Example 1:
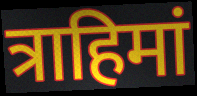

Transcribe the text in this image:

त्राहिमां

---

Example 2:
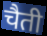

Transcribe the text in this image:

चैती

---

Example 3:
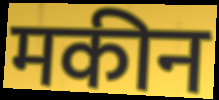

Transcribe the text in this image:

मकीन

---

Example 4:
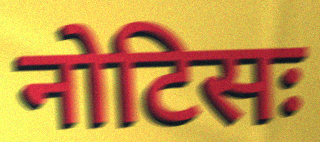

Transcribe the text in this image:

नोटिसः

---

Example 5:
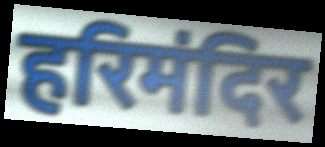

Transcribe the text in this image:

हरिमंदिर